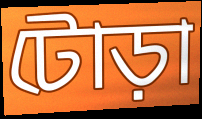
টোড়া